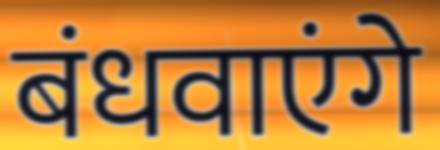
बंधवाएंगे